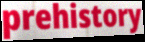
prehistory